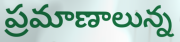
ప్రమాణాలున్న